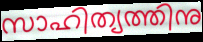
സാഹിത്യത്തിനു